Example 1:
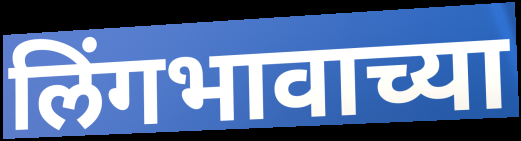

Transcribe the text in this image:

लिंगभावाच्या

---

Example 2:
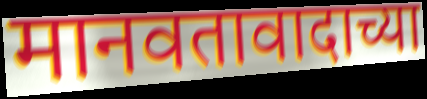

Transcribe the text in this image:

मानवतावादाच्या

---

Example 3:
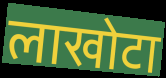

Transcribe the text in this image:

लाखोटा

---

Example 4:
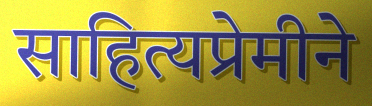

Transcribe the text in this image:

साहित्यप्रेमीने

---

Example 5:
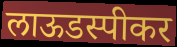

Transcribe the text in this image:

लाऊडस्पीकर